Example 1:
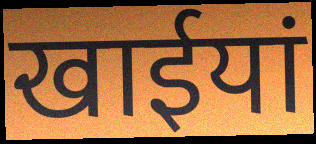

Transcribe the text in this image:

खाईयां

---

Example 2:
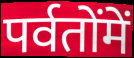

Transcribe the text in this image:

पर्वतोंमें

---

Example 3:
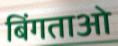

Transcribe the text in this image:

बिंगताओ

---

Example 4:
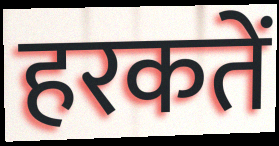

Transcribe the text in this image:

हरकतें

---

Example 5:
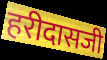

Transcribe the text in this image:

हरीदासजी